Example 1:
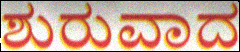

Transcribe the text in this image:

ಶುರುವಾದ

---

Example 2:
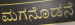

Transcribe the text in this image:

ಮಗನೊಡನೆ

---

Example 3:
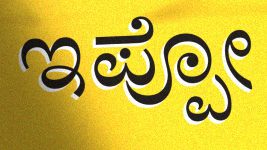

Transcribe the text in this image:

ಇಪ್ಪೋ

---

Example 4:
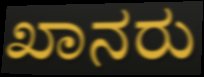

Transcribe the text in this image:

ಖಾನರು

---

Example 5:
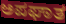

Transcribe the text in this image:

ಅಪಘಾತ